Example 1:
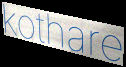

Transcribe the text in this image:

kothare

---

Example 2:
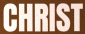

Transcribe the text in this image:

CHRIST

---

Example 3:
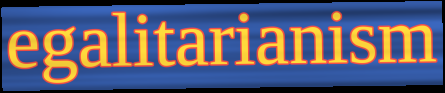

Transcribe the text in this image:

egalitarianism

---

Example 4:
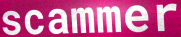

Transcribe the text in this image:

scammer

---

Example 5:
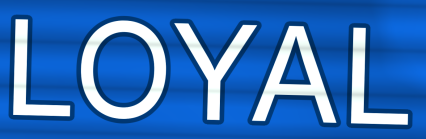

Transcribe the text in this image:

LOYAL